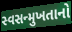
સ્વસન્મુખતાનો